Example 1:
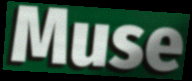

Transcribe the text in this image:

Muse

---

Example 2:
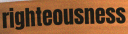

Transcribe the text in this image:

righteousness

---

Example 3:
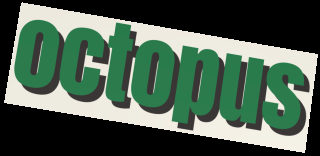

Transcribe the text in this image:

octopus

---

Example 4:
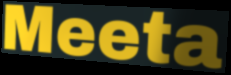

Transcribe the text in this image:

Meeta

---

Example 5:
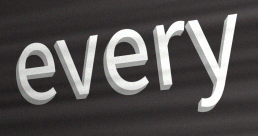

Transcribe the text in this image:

every